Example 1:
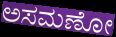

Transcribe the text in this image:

ಅಸಮಣೋ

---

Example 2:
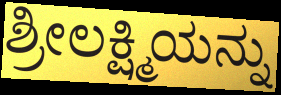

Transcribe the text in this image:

ಶ್ರೀಲಕ್ಷ್ಮಿಯನ್ನು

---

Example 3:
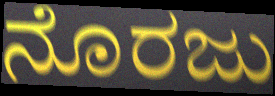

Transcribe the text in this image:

ನೊರಜು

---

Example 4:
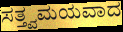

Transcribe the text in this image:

ಸತ್ತ್ವಮಯವಾದ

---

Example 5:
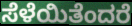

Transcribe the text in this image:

ಸೆಳೆಯಿತೆಂದರೆ